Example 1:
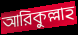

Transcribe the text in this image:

আরিকুল্লাহ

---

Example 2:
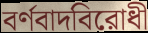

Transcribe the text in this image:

বর্ণবাদবিরোধী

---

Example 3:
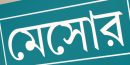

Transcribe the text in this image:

মেসোর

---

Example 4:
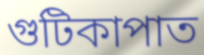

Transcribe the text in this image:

গুটিকাপাত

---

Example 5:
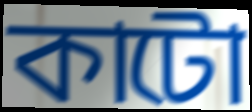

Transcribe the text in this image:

কাটো